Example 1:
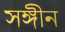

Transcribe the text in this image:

সঙ্গীন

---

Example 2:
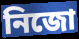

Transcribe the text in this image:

নিজো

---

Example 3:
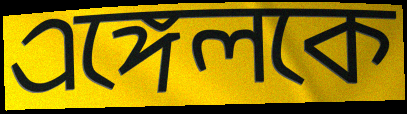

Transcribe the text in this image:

এঙ্গেলকে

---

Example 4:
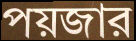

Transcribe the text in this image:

পয়জার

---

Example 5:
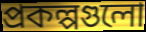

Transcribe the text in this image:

প্রকল্পগুলো